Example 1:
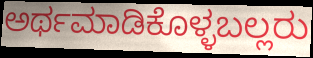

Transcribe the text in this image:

ಅರ್ಥಮಾಡಿಕೊಳ್ಳಬಲ್ಲರು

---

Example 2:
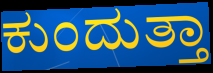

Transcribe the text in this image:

ಕುಂದುತ್ತಾ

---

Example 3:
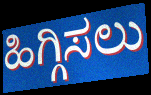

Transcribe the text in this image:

ಹಿಗ್ಗಿಸಲು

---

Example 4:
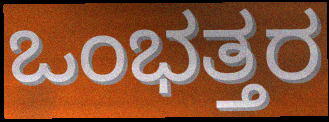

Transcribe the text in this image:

ಒಂಭತ್ತರ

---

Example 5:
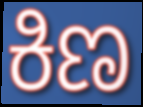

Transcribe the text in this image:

ಕಿಣ